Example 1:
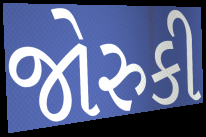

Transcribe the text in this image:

જોરુકી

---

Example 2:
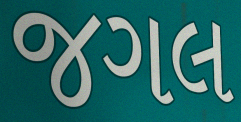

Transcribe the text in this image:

જગલ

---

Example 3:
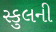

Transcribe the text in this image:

સ્કુલની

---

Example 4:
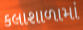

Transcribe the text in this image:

કલાશાળામાં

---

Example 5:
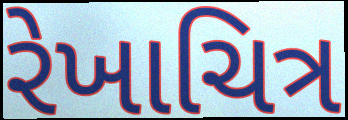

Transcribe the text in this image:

રેખાચિત્ર